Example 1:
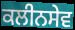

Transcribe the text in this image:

ਕਲੀਨਸੇਵ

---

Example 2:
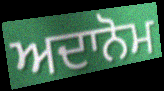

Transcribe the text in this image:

ਅਦਾਨੋਮ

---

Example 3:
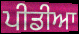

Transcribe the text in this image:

ਪੀਡੀਆ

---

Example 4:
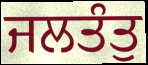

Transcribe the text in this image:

ਜਲਤੰਤੁ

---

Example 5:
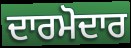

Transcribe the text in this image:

ਦਾਰਮੋਦਾਰ